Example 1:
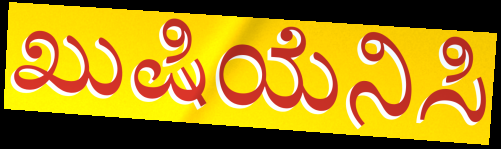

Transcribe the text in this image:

ಖುಷಿಯೆನಿಸಿ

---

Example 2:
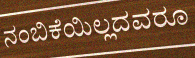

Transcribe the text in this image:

ನಂಬಿಕೆಯಿಲ್ಲದವರೂ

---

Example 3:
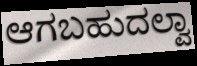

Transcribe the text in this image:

ಆಗಬಹುದಲ್ವಾ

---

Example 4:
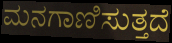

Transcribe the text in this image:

ಮನಗಾಣಿಸುತ್ತದೆ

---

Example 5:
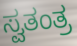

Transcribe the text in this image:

ಸ್ವತಂತ್ರ